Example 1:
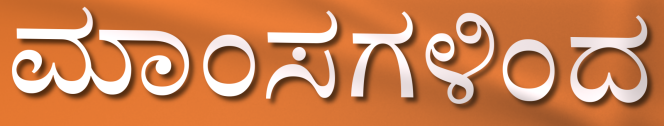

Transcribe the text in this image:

ಮಾಂಸಗಳಿಂದ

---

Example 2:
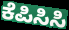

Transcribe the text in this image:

ಕೆಪಿಸಿಸಿ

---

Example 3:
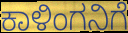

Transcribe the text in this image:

ಕಾಳಿಂಗನಿಗೆ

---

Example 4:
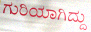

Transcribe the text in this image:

ಗುರಿಯಾಗಿದ್ದು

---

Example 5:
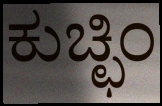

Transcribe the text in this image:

ಕುಚ್ಛಿಂ